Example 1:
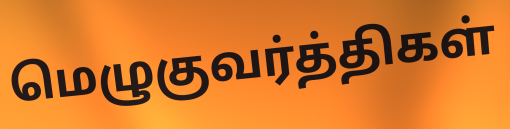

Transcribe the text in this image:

மெழுகுவர்த்திகள்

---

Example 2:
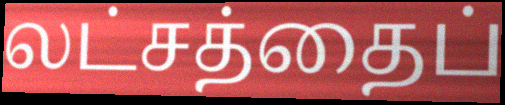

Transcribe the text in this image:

லட்சத்தைப்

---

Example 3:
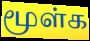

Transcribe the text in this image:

மூள்க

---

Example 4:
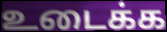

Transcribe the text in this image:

உடைக்க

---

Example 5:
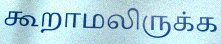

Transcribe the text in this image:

கூறாமலிருக்க